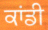
ਕਾਂਡੀ